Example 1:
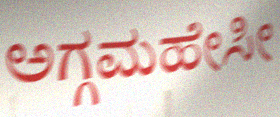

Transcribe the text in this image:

ಅಗ್ಗಮಹೇಸೀ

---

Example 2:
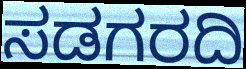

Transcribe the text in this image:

ಸಡಗರದಿ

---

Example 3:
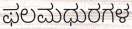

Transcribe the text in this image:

ಫಲಮಧುರಗಳ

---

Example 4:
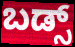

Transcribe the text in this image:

ಬಡ್ಸ್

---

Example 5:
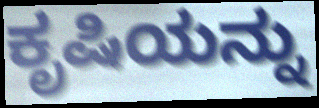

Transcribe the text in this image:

ಕೃಷಿಯನ್ನು